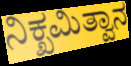
ನಿಕ್ಖಮಿತ್ವಾನ